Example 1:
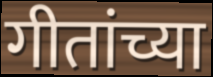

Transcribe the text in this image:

गीतांच्या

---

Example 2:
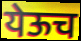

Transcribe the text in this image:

येऊच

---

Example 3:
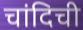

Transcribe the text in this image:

चांदिची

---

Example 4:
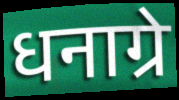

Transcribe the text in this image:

धनाग्रे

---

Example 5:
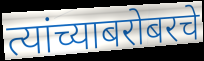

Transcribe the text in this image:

त्यांच्याबरोबरचे